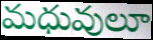
మధువులూ